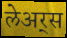
लेअर्स